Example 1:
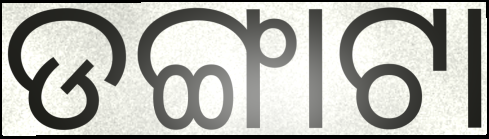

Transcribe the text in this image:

ଡଙ୍ଗାଟା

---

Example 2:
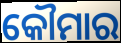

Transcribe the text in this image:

କୌମାର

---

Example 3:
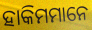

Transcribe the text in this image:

ହାକିମମାନେ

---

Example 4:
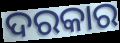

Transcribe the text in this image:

ଦରକାର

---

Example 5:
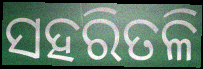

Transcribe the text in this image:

ସହରିତଳି